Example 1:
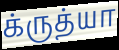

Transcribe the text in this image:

க்ருத்யா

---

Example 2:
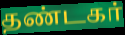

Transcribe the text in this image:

தண்டகர்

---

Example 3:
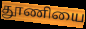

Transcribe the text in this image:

தூணியை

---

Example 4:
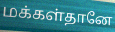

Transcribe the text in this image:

மக்கள்தானே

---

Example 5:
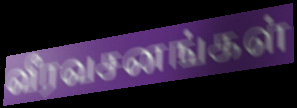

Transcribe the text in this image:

வீரவசனங்கள்